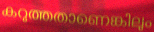
കറുത്തതാണെങ്കിലും